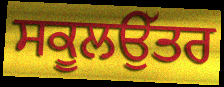
ਸਕੂਲਉੱਤਰ